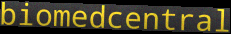
biomedcentral